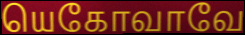
யெகோவாவே